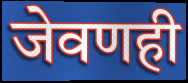
जेवणही